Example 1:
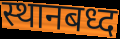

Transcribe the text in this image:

स्थानबध्द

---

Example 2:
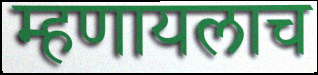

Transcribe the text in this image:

म्हणायलाच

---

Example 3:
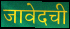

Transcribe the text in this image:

जावेदची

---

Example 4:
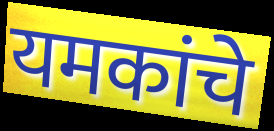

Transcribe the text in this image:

यमकांचे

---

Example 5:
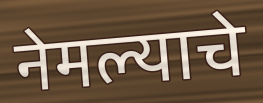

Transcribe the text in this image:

नेमल्याचे